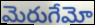
మెరుగేమో